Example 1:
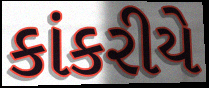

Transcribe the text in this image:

કાંકરીયે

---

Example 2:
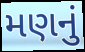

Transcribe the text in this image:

મણનું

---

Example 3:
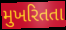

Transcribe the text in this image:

મુખરિતતા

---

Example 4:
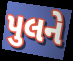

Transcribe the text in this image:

પુલને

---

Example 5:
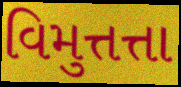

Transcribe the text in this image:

વિમુત્તત્તા